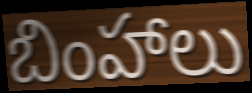
బింహాలు